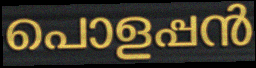
പൊളപ്പൻ